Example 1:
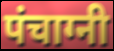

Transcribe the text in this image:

पंचाग्नी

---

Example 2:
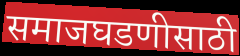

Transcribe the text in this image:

समाजघडणीसाठी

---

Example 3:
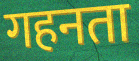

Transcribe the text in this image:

गहनता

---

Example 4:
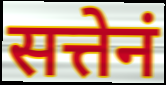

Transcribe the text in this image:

सत्तेनं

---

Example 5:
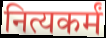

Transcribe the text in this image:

नित्यकर्मं